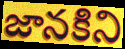
జానకిని